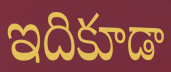
ఇదికూడా